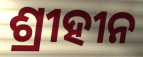
ଶ୍ରୀହୀନ